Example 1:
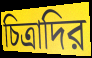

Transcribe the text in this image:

চিত্রাদির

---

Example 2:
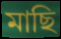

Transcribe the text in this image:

মাছি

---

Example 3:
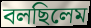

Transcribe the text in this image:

বলছিলেম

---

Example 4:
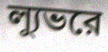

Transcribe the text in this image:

ল্যুভরে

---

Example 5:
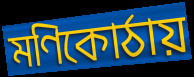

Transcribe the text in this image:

মণিকোঠায়